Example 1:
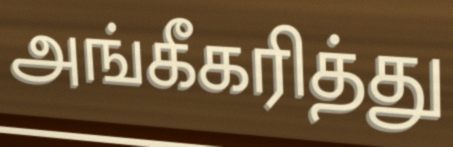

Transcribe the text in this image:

அங்கீகரித்து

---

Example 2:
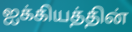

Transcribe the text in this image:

ஐக்கியத்தின்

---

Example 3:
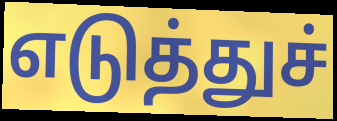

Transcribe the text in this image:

எடுத்துச்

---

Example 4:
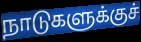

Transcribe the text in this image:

நாடுகளுக்குச்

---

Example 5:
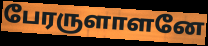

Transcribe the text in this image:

பேரருளாளனே